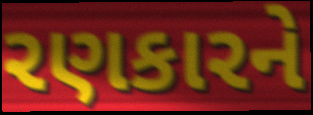
રણકારને